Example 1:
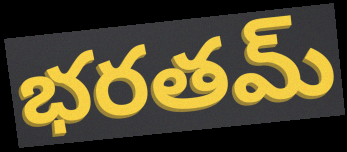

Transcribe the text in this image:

భరతమ్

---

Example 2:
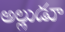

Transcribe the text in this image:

అల్లుడూ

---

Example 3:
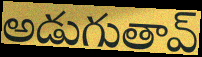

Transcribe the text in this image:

అడుగుతావ్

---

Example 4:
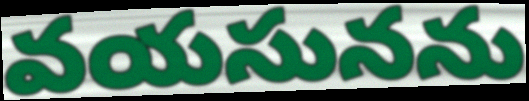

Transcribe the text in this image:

వయసునను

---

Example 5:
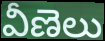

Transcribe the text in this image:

వీణెలు